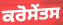
ਕਰੋਸੇਂਤਸ